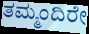
ತಮ್ಮಂದಿರೇ